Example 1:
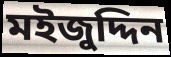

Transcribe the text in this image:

মইজুদ্দিন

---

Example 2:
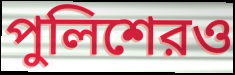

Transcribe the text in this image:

পুলিশেরও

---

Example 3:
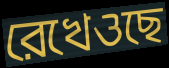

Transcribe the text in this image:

রেখেওছে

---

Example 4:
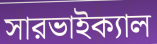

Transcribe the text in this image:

সারভাইক্যাল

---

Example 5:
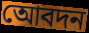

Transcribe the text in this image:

আেবদন